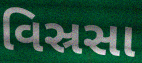
વિસ્રસા